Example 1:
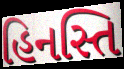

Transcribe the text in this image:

હિનસ્તિ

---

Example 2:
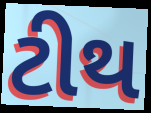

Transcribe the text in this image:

ટીથ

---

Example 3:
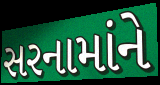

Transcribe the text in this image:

સરનામાંને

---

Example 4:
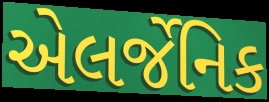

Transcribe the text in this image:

એલર્જેનિક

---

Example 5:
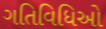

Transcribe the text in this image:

ગતિવિધિઓ